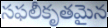
సఫలీకృతమైన